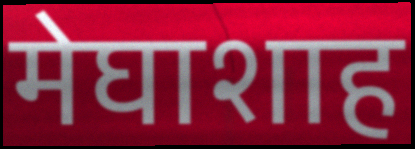
मेघाशाह